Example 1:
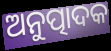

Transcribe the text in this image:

ଅନୁତ୍ପାଦକ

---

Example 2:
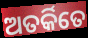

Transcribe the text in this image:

ଅତର୍କିତେ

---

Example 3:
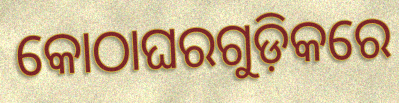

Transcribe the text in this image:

କୋଠାଘରଗୁଡ଼ିକରେ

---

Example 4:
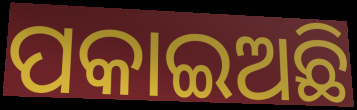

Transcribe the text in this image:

ପକାଇଅଛି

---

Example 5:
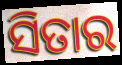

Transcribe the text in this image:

ସିତାର